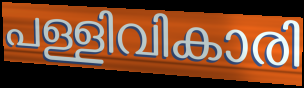
പള്ളിവികാരി